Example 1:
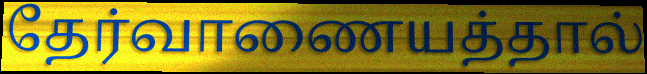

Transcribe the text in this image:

தேர்வாணையத்தால்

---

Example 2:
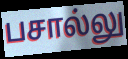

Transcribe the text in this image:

பசால்லு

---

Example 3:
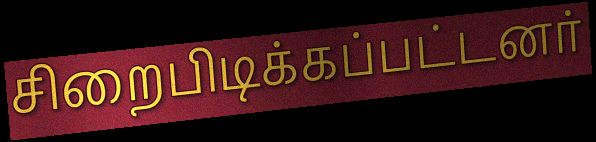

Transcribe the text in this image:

சிறைபிடிக்கப்பட்டனர்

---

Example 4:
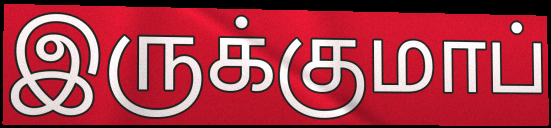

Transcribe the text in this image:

இருக்குமாப்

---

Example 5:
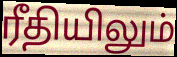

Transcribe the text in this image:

ரீதியிலும்